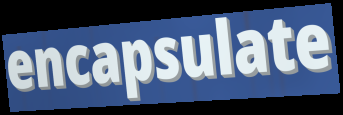
encapsulate